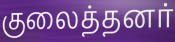
குலைத்தனர்